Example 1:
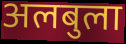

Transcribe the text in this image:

अलबुला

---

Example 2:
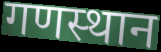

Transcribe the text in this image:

गणस्थान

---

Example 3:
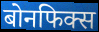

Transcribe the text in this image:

बोनफिक्स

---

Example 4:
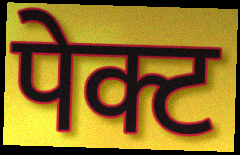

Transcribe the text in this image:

पेक्ट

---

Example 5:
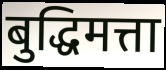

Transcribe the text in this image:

बुद्धिमत्ता